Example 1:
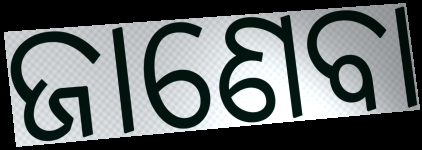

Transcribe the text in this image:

ଜାଣେବା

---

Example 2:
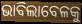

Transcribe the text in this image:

ଭାବିଲାବେଳକୁ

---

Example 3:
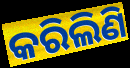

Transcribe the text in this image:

କରିଲିଣି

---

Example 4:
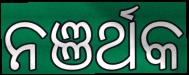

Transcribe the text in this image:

ନଞର୍ଥକ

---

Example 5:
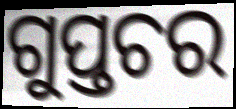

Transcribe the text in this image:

ଗୁପ୍ତଚର